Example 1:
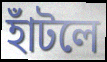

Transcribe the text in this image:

হাঁটলে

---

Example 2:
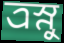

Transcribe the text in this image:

ত্রস্নু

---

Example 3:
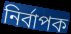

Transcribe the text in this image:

নির্বাপক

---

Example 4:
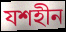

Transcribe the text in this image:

যশহীন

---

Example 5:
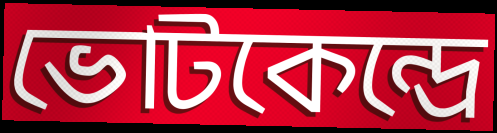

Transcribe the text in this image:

ভোটকেন্দ্রে